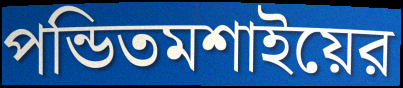
পন্ডিতমশাইয়ের